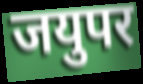
जयुपर